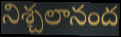
నిశ్చలానంద